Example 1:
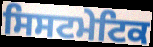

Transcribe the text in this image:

ਸਿਸਟਮੇਟਿਕ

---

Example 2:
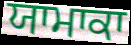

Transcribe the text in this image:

ਯਾਮਾਕਾ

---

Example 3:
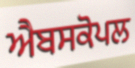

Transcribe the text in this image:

ਐਬਸਕੋਪਲ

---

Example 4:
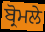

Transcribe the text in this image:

ਬ੍ਰੋਮਲੇ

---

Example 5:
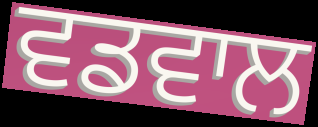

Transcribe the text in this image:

ਵਡਵਾਲ